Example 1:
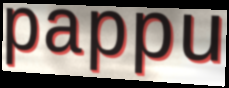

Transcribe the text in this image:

pappu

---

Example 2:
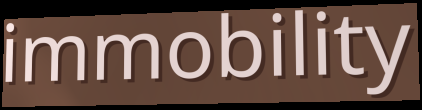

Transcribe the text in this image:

immobility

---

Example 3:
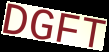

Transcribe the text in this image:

DGFT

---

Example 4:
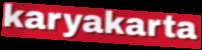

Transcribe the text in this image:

karyakarta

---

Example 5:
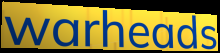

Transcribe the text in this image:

warheads